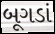
બૂગડાં